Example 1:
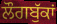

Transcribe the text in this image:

ਲੌਗਬੁੱਕਾਂ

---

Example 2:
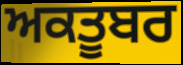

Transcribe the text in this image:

ਅਕਤੂਬਰ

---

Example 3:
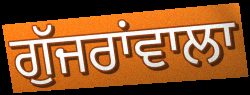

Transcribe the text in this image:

ਗੁੱਜਰਾਂਵਾਲਾ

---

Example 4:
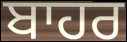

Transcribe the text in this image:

ਬਾਹਰ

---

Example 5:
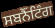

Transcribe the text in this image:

ਸਬਨੈੱਟਿੰਗ